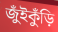
জুঁইকুঁড়ি